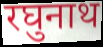
रघुनाथ